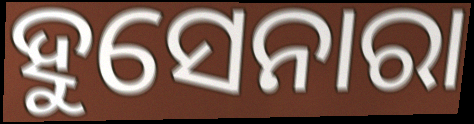
ହୁସେନାରା